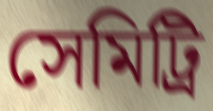
সেমিট্রি